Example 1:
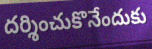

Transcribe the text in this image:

దర్శించుకొనేందుకు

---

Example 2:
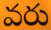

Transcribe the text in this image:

వరు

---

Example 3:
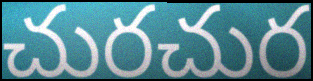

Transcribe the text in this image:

చురచుర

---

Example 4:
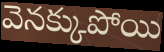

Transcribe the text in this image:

వెనక్కుపోయి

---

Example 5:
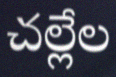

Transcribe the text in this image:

చల్లేల